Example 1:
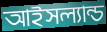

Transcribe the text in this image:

আইসল্যান্ড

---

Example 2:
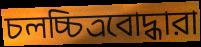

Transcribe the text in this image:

চলচ্চিত্রবোদ্ধারা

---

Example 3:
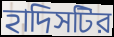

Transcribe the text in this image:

হাদিসটির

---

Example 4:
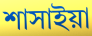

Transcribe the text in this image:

শাসাইয়া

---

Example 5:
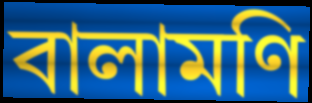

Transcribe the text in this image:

বালামণি